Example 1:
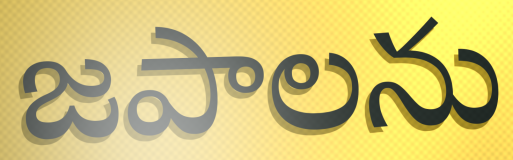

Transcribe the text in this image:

జపాలను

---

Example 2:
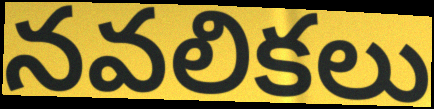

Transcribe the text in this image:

నవలికలు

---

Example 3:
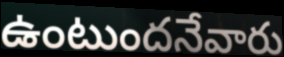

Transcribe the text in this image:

ఉంటుందనేవారు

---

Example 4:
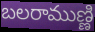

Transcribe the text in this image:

బలరాముణ్ణి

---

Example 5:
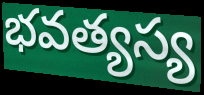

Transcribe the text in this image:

భవత్యస్య